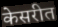
केसरीत